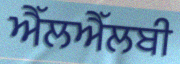
ਐੱਲਐੱਲਬੀ